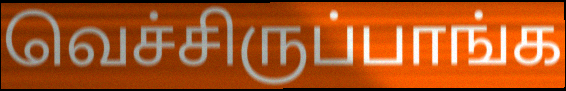
வெச்சிருப்பாங்க